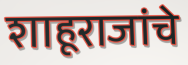
शाहूराजांचे